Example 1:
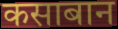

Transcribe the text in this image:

कसाबान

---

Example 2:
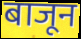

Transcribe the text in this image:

बाजून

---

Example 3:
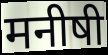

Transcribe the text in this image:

मनीषी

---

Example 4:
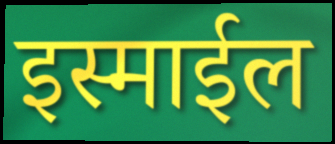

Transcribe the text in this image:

इस्माईल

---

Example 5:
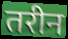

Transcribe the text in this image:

तरीन